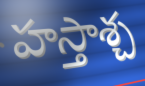
హస్తాశ్చ